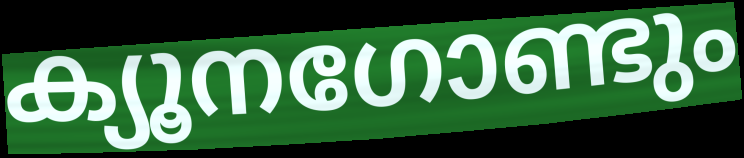
ക്യൂനഗോണ്ടും